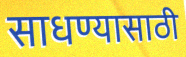
साधण्यासाठी